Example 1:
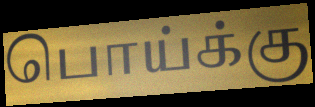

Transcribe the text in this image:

பொய்க்கு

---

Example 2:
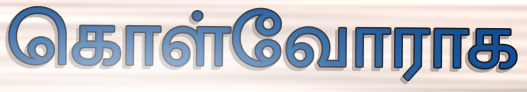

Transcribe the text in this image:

கொள்வோராக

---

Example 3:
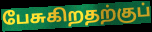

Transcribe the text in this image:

பேசுகிறதற்குப்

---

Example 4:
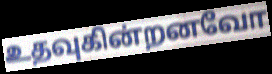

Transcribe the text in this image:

உதவுகின்றனவோ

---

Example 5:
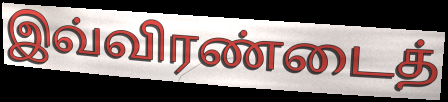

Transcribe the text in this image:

இவ்விரண்டைத்